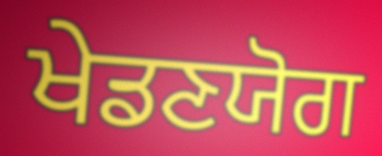
ਖੇਡਣਯੋਗ